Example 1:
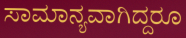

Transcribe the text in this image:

ಸಾಮಾನ್ಯವಾಗಿದ್ದರೂ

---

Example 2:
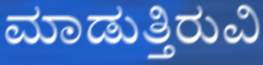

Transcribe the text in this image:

ಮಾಡುತ್ತಿರುವಿ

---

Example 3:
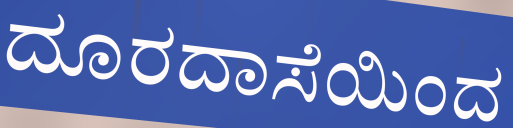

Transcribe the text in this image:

ದೂರದಾಸೆಯಿಂದ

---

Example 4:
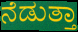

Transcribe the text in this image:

ನೆಡುತ್ತಾ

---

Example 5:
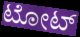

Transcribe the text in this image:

ಟೋಟ್